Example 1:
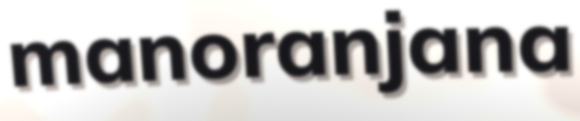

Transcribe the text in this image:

manoranjana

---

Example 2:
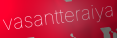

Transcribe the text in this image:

vasantteraiya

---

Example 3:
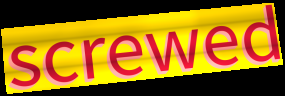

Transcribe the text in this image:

screwed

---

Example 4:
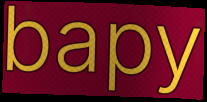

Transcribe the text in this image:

bapy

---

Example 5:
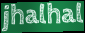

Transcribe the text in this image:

jhalhal